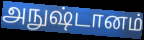
அநுஷ்டானம்